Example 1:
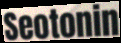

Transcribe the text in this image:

Seotonin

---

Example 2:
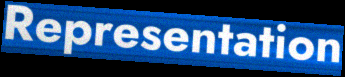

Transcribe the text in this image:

Representation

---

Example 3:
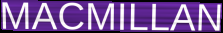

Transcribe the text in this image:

MACMILLAN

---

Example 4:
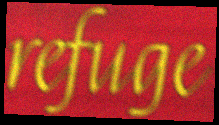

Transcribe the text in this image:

refuge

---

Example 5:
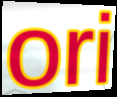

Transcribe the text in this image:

ori